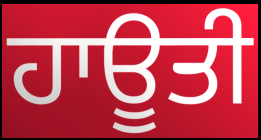
ਹਾਊਤੀ